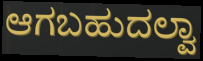
ಆಗಬಹುದಲ್ವಾ